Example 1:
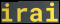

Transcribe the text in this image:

irai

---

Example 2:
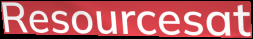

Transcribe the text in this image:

Resourcesat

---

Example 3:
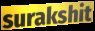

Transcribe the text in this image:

surakshit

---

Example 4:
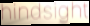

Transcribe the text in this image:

hindsight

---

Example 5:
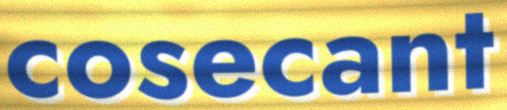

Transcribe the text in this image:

cosecant